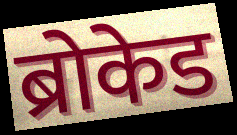
ब्रोकेड